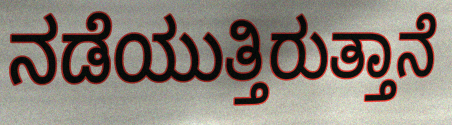
ನಡೆಯುತ್ತಿರುತ್ತಾನೆ